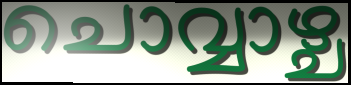
ചൊവ്വാഴ്ച